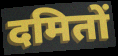
दमितों